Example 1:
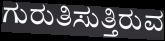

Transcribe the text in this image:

ಗುರುತಿಸುತ್ತಿರುವ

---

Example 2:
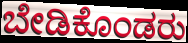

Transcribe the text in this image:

ಬೇಡಿಕೊಂಡರು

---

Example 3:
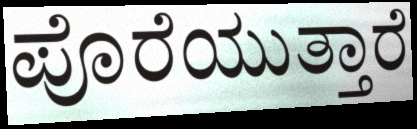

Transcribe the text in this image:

ಪೊರೆಯುತ್ತಾರೆ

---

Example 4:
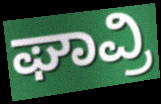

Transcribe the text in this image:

ಘಾವ್ರಿ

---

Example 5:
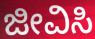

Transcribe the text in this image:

ಜೀವಿಸಿ